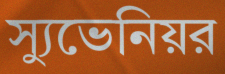
স্যুভেনিয়র